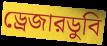
ড্রেজারডুবি